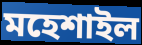
মহেশাইল